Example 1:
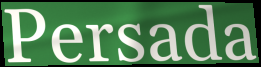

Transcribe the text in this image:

Persada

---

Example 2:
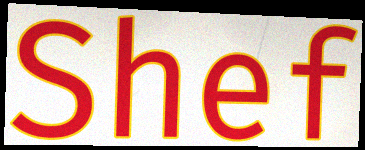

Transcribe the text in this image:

Shef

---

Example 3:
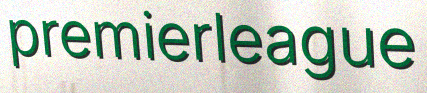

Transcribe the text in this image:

premierleague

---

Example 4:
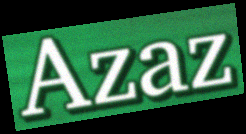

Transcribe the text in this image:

Azaz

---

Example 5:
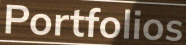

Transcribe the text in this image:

Portfolios